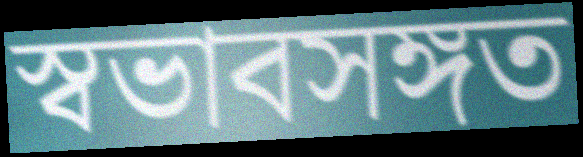
স্বভাবসঙ্গত